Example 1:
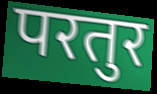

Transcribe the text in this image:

परतुर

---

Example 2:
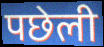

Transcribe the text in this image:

पछेली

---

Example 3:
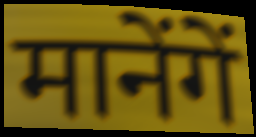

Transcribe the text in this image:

मानेंगें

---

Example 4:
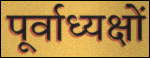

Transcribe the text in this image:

पूर्वाध्यक्षों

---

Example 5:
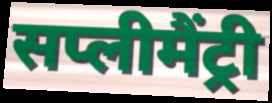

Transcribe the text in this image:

सप्लीमैंट्री